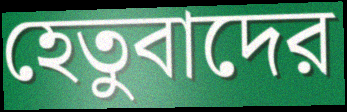
হেতুবাদের